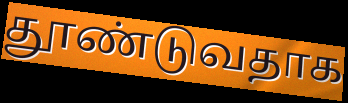
தூண்டுவதாக